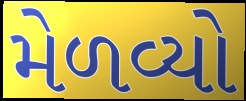
મેળવ્યો